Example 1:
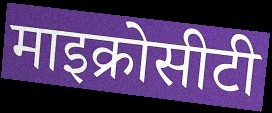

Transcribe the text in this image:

माइक्रोसीटी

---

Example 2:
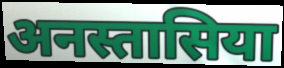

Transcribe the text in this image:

अनस्तासिया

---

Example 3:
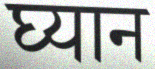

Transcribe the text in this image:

घ्यान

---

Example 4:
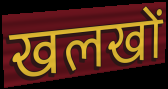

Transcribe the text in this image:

खलखों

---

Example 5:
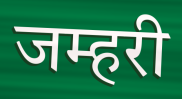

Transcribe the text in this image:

जम्हरी